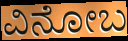
ವಿನೋಬ